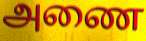
அணை